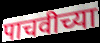
पाचवीच्या